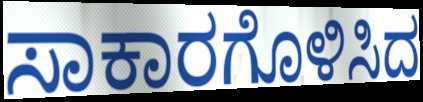
ಸಾಕಾರಗೊಳಿಸಿದ